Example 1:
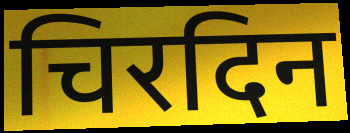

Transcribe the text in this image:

चिरदिन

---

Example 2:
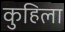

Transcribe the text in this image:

कुहिला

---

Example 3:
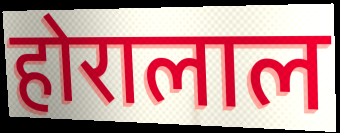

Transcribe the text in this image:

होरालाल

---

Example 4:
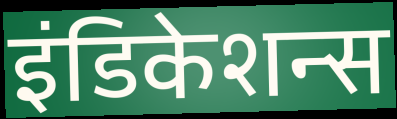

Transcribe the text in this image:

इंडिकेशन्स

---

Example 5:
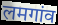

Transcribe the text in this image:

लमगांव